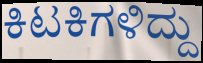
ಕಿಟಕಿಗಳಿದ್ದು